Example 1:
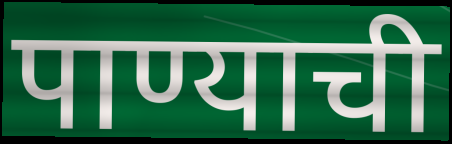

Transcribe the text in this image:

पाण्याची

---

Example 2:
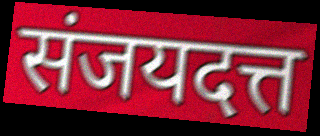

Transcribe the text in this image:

संजयदत्त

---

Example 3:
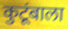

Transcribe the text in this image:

कुटूंबाला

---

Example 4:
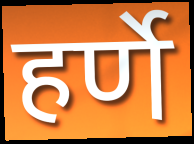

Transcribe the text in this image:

हर्णे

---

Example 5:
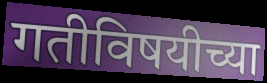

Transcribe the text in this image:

गतीविषयीच्या